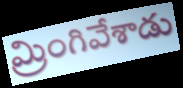
మ్రింగివేశాడు